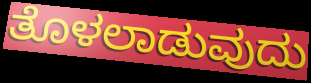
ತೊಳಲಾಡುವುದು